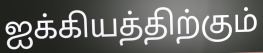
ஐக்கியத்திற்கும்